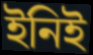
ইনিই